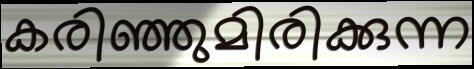
കരിഞ്ഞുമിരിക്കുന്ന